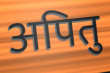
अपितु